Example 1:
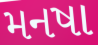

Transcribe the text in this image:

મનષા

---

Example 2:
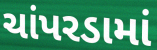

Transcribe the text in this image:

ચાંપરડામાં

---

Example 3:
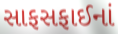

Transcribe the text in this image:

સાફસફાઈનાં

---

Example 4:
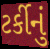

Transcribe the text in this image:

ટર્કીનું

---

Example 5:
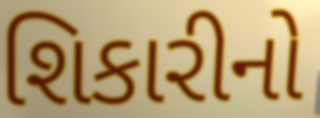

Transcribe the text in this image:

શિકારીનો